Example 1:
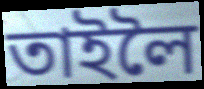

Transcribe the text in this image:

তাইলৈ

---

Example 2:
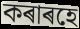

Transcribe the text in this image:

কৰাৰহে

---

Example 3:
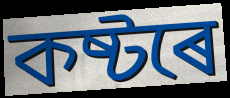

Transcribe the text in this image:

কষ্টৰে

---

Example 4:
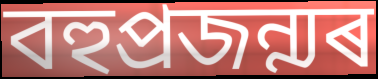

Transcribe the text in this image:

বহুপ্ৰজন্মৰ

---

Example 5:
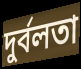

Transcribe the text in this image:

দুৰ্বলতা